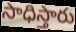
సాధిస్తారు